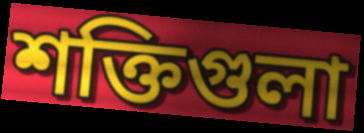
শক্তিগুলা